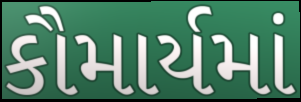
કૌમાર્યમાં